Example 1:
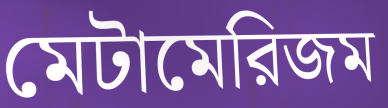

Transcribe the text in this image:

মেটামেরিজম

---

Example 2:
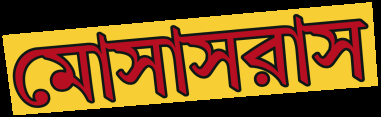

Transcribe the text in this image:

মোসাসরাস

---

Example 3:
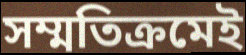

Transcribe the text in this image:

সম্মতিক্রমেই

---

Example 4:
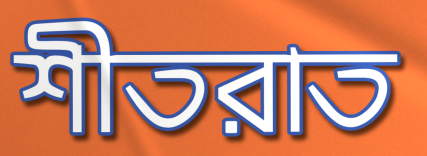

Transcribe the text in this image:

শীতরাত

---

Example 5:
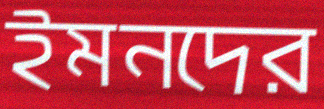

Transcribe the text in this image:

ইমনদের